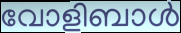
വോളിബാൾ